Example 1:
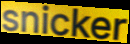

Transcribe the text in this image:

snicker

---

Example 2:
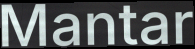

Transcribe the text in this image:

Mantar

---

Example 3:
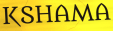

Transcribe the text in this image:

KSHAMA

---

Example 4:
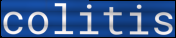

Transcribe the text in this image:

colitis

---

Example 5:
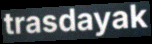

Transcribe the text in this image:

trasdayak